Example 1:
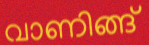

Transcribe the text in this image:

വാണിങ്ങ്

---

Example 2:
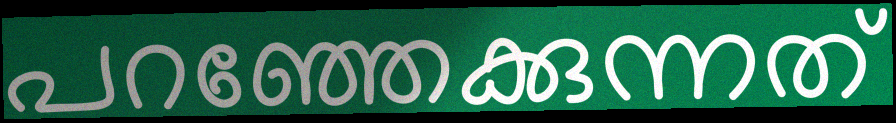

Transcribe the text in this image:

പറഞ്ഞേക്കുന്നത്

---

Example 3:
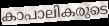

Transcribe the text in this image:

കാപാലികരുടെ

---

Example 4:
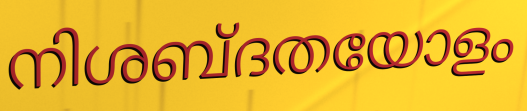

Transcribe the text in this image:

നിശബ്ദതയോളം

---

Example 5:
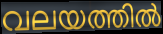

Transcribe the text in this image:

വലയത്തിൽ